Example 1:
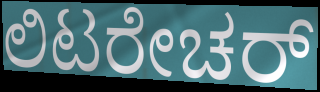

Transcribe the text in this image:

ಲಿಟರೇಚರ್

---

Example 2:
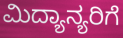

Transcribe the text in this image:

ಮಿದ್ಯಾನ್ಯರಿಗೆ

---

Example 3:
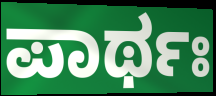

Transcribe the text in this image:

ಪಾರ್ಥಃ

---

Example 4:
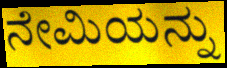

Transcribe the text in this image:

ನೇಮಿಯನ್ನು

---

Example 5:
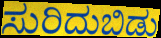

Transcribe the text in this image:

ಸುರಿದುಬಿಡು